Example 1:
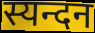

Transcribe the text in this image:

स्यन्दन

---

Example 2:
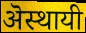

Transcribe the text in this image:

ऄस्थायी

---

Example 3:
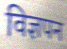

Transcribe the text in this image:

विज्ञपन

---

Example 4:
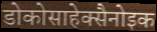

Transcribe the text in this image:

डोकोसाहेक्सैनोइक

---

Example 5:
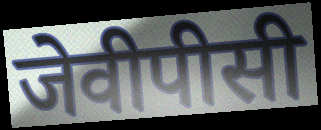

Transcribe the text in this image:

जेवीपीसी